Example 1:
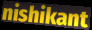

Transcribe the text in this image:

nishikant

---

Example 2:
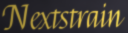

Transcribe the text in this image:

Nextstrain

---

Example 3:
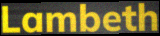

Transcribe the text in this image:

Lambeth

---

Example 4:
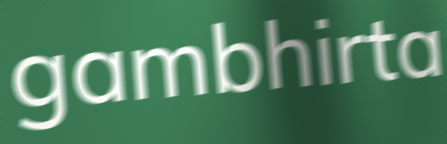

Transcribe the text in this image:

gambhirta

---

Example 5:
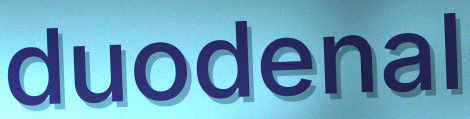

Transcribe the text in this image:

duodenal